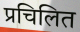
प्रचिलित